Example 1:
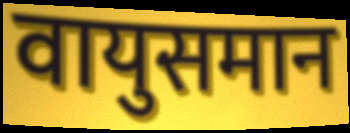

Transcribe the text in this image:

वायुसमान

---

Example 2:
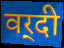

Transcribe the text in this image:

वर्दी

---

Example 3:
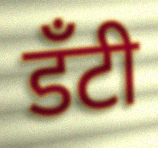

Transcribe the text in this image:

डँटी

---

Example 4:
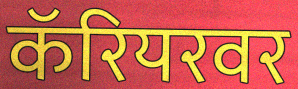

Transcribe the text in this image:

कॅरियरवर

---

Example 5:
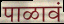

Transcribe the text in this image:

पाळावं